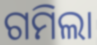
ଗମିଲା